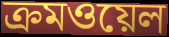
ক্রমওয়েল